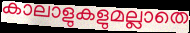
കാലാളുകളുമല്ലാതെ